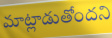
మాట్లాడుతోందని